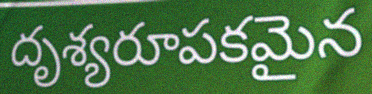
దృశ్యరూపకమైన